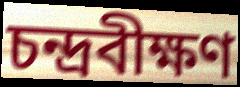
চন্দ্রবীক্ষণ